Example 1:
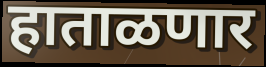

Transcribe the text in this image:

हाताळणार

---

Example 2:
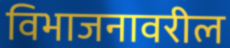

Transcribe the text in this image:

विभाजनावरील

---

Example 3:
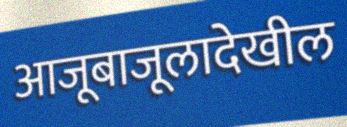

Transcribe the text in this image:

आजूबाजूलादेखील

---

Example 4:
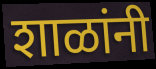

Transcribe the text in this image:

शाळांनी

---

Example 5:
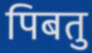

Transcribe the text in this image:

पिबतु